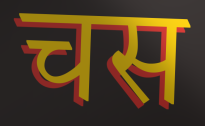
चस